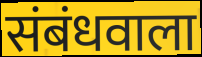
संबंधवाला